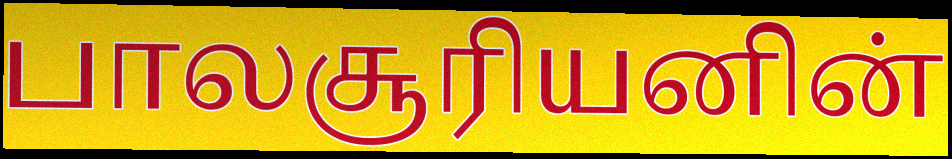
பாலசூரியனின்